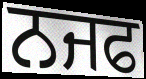
ਨਜਫ